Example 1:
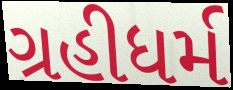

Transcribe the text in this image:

ગ્રહીધર્મ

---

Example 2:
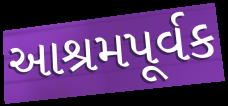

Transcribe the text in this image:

આશ્રમપૂર્વક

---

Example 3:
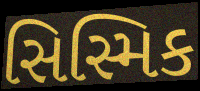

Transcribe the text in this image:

સિસ્મિક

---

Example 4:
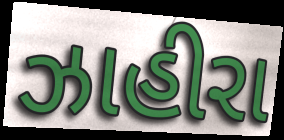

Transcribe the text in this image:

ઝાહીરા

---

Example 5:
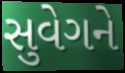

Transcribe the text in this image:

સુવેગને